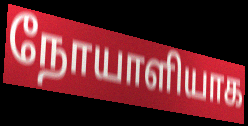
நோயாளியாக